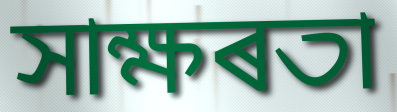
সাক্ষৰতা